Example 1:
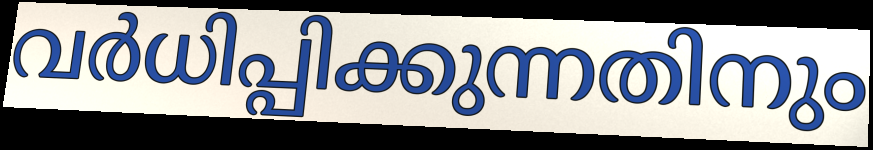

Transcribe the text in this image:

വർധിപ്പിക്കുന്നതിനും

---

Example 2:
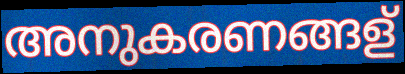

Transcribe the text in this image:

അനുകരണങ്ങള്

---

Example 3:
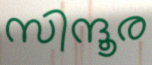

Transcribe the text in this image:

സിന്ദൂര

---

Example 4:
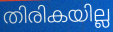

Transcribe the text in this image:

തിരികയില്ല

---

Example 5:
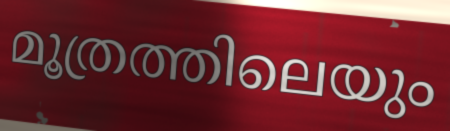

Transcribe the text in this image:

മൂത്രത്തിലെയും